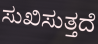
ಸುಖಿಸುತ್ತದೆ